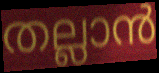
തല്ലാൻ